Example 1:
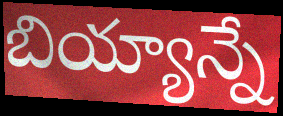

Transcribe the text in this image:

బియ్యాన్నే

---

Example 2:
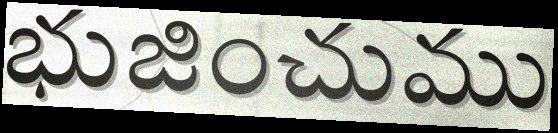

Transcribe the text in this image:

భుజించుము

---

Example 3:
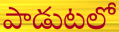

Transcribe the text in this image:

పాడుటలో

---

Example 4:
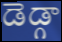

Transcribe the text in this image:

డెడ్గా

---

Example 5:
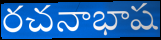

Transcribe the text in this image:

రచనాభాష